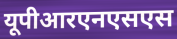
यूपीआरएनएसएस